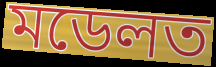
মডেলত